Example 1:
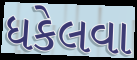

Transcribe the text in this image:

ધકેલવા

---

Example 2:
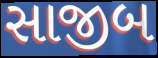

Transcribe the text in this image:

સાજીબ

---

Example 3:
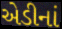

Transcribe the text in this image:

એડીનાં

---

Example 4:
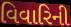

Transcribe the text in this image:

વિવારિની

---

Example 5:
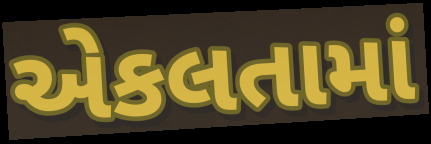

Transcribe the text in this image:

એકલતામાં